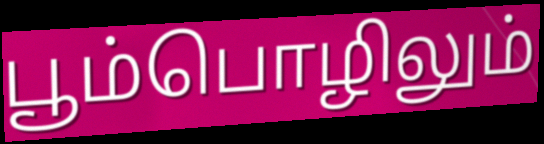
பூம்பொழிலும்